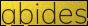
abides